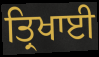
ਤ੍ਰਿਖਾਈ